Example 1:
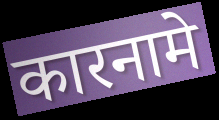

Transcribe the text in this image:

कारनामे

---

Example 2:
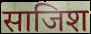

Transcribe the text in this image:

साजिश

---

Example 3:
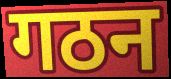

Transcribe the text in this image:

गठन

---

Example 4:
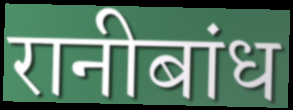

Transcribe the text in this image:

रानीबांध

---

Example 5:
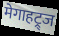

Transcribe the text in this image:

मेगाहट्र्ज